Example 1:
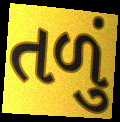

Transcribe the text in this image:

તળું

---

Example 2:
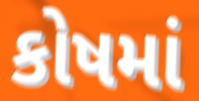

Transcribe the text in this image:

કોષમાં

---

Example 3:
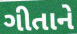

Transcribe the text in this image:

ગીતાને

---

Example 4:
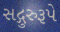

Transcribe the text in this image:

સદ્ગુરુરૂપે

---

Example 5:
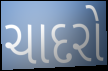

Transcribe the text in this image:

ચાદરો